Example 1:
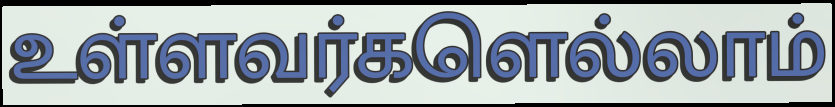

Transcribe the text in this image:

உள்ளவர்களெல்லாம்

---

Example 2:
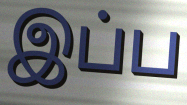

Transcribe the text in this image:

இப்ப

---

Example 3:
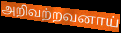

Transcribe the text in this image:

அறிவற்றவனாய்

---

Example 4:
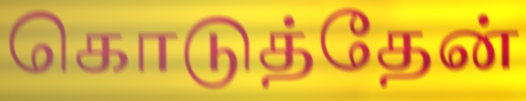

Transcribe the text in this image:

கொடுத்தேன்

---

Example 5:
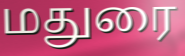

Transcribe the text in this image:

மதுரை